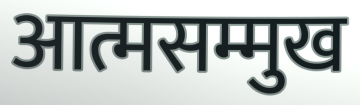
आत्मसम्मुख